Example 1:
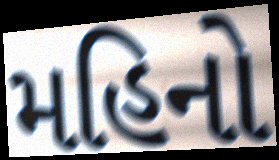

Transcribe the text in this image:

મહિનો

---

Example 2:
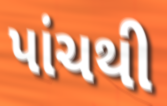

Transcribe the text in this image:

પાંચથી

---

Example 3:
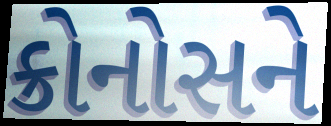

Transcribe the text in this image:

ક્રોનોસને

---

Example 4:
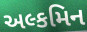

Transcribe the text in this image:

અલ્કમિન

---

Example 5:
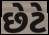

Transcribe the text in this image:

છેટે